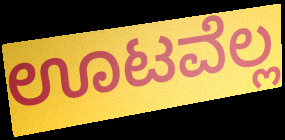
ಊಟವೆಲ್ಲ